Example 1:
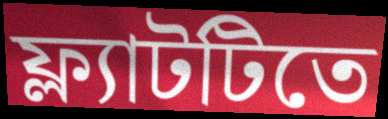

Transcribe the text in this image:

ফ্ল্যাটটিতে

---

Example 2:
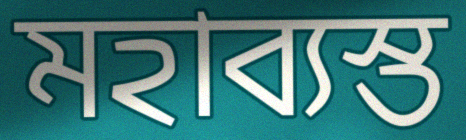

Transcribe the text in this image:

মহাব্যস্ত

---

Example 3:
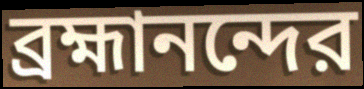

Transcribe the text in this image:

ব্রহ্মানন্দের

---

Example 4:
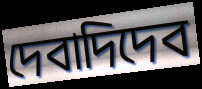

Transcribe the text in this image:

দেবাদিদেব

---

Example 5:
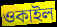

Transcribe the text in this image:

ওকাইল